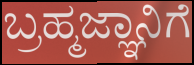
ಬ್ರಹ್ಮಜ್ಞಾನಿಗೆ